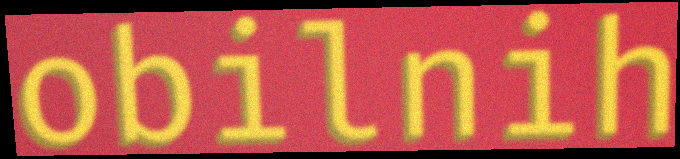
obilnih